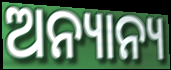
ଅନ୍ୟାନ୍ୟ